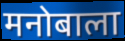
मनोबाला